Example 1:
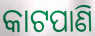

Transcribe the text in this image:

କାଟପାଣି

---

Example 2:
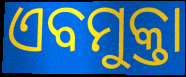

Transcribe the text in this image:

ଏବମୁକ୍ତା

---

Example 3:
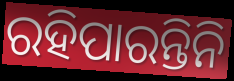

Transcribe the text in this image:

ରହିପାରନ୍ତିନି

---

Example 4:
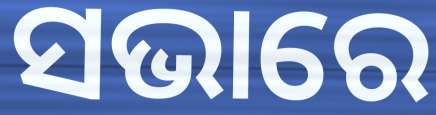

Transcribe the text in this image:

ସଭାରେ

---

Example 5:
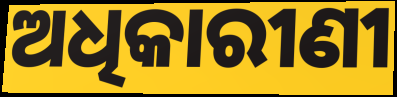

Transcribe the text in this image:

ଅଧିକାରୀଣୀ